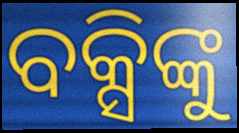
ବକ୍ସିଙ୍କୁ